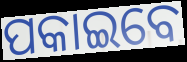
ପକାଇବେ